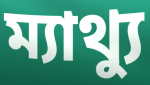
ম্যাথ্যু